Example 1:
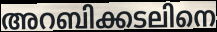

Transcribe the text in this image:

അറബിക്കടലിനെ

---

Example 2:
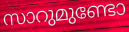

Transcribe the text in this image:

സാറുമുണ്ടോ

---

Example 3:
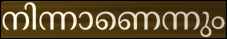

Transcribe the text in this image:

നിന്നാണെന്നും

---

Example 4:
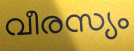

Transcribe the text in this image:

വീരസ്യം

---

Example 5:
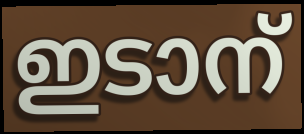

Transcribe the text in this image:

ഇടാന്